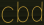
cbd